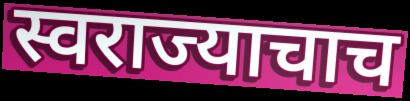
स्वराज्याचाच